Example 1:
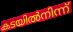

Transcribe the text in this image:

കടയിൽനിന്ന്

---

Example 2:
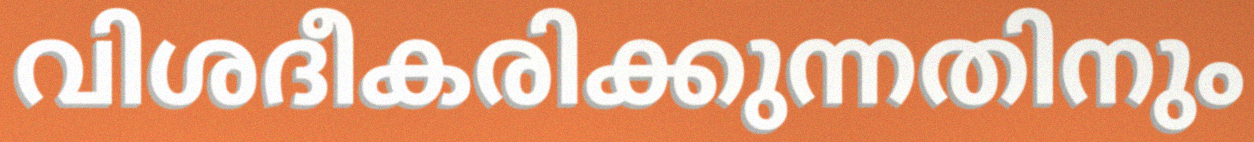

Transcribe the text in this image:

വിശദീകരിക്കുന്നതിനും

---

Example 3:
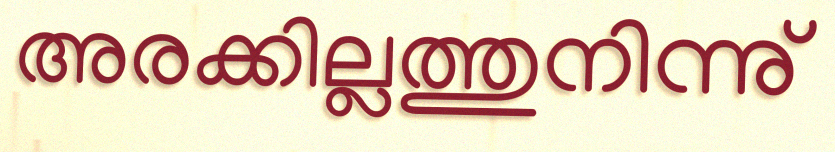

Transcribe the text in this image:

അരക്കില്ലത്തുനിന്നു്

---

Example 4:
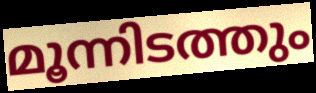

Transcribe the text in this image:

മൂന്നിടത്തും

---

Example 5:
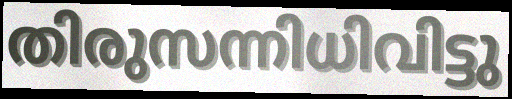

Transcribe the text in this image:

തിരുസന്നിധിവിട്ടു